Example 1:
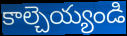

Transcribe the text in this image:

కాల్చెయ్యండి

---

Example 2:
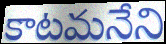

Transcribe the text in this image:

కాటమనేని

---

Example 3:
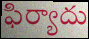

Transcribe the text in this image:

ఫిర్యాదు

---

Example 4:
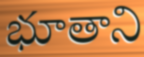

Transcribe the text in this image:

భూతాని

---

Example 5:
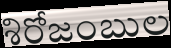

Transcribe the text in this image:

శిరోజంబుల